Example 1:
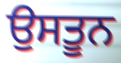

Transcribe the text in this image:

ਉਸਤੂਨ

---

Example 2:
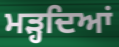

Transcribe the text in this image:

ਮੜ੍ਹਦਿਆਂ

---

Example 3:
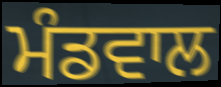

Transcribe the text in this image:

ਮੰਡਵਾਲ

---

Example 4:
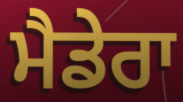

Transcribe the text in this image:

ਮੈਡੇਰਾ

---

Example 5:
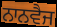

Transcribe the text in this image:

ਨਾਨਵੈਜ